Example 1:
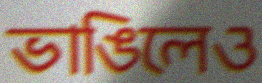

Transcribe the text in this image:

ভাঙিলেও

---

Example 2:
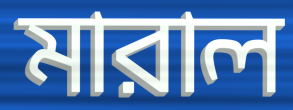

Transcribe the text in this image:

মারাল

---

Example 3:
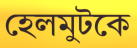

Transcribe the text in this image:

হেলমুটকে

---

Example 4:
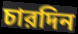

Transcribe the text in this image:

চারদিন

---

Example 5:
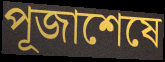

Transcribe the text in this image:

পূজাশেষে